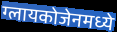
ग्लायकोजेनमध्ये